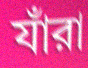
যাঁরা